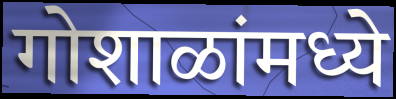
गोशाळांमध्ये